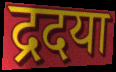
द्रदया